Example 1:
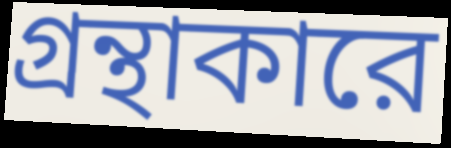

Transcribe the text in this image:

গ্রন্থাকারে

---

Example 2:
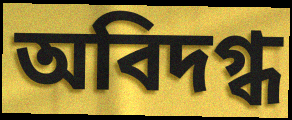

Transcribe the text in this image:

অবিদগ্ধ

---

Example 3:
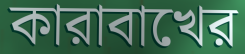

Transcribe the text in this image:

কারাবাখের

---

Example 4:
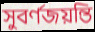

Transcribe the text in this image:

সুবর্ণজয়ন্তি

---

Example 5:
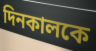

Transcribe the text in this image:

দিনকালকে